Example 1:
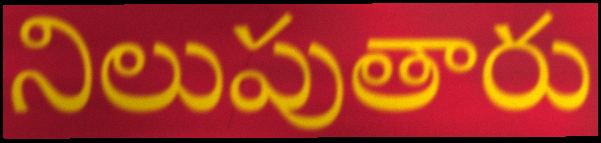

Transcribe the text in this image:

నిలుపుతారు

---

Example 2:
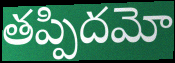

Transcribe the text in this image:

తప్పిదమో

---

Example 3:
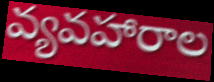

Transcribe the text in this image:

వ్యవహారాల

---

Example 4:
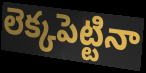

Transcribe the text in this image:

లెక్కపెట్టినా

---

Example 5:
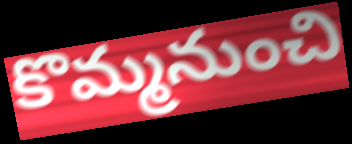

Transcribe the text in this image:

కొమ్మనుంచి